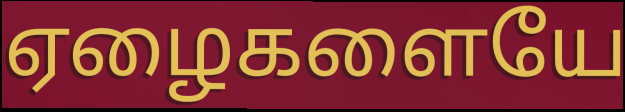
ஏழைகளையே